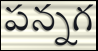
పన్నగ